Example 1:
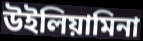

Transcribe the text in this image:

উইলিয়ামিনা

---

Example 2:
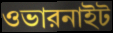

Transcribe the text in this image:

ওভারনাইট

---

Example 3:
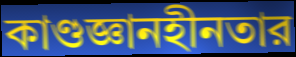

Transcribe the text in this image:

কাণ্ডজ্ঞানহীনতার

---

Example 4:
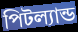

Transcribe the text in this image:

পিটল্যান্ড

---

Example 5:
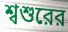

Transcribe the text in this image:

শ্বশুরের